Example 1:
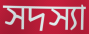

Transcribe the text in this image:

সদস্যা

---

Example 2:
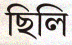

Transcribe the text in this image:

ছিলি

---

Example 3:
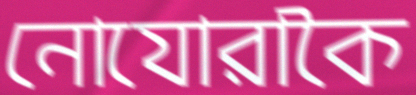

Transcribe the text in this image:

নোযোৱাকৈ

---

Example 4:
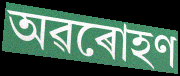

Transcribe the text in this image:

অৱৰোহণ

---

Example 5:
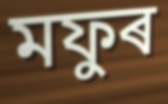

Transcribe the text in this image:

মফুৰ